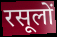
रसूलों